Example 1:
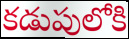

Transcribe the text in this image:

కడుపులోకి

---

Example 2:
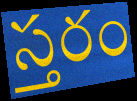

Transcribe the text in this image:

స్తరం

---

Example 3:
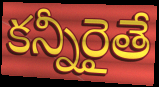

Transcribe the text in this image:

కన్నీరైతే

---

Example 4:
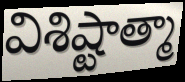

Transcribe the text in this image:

విశిష్టాత్మా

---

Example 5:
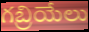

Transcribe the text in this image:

గబ్రియేలు